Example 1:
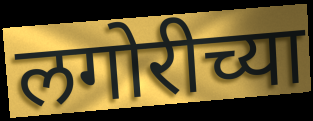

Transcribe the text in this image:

लगोरीच्या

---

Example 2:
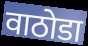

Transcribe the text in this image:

वाठोडा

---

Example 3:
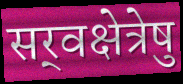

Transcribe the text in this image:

सर्वक्षेत्रेषु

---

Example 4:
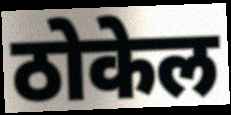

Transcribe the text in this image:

ठोकेल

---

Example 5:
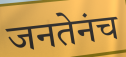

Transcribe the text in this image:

जनतेनंच